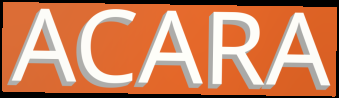
ACARA